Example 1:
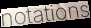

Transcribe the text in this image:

notations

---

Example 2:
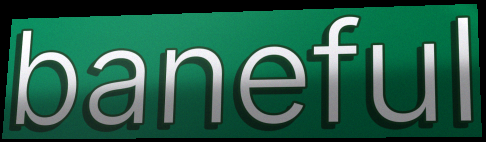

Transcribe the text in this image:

baneful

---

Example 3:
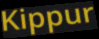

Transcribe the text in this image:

Kippur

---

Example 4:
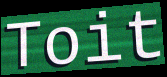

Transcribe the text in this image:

Toit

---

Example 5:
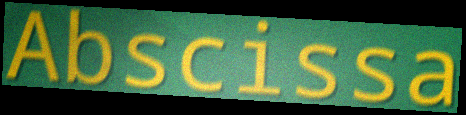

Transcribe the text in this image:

Abscissa